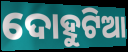
ଦୋହୁଟିଆ